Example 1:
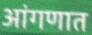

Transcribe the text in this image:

आंगणात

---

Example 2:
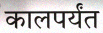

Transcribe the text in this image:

कालपर्यंत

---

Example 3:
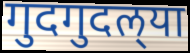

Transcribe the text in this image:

गुदगुदल्या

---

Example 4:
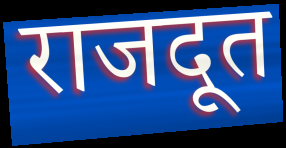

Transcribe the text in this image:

राजदूत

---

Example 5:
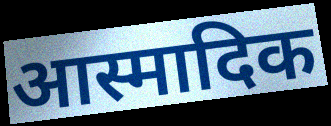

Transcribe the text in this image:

आस्मादिक